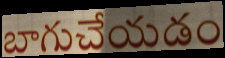
బాగుచేయడం